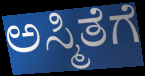
ಅಸ್ಮಿತೆಗೆ